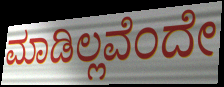
ಮಾಡಿಲ್ಲವೆಂದೇ